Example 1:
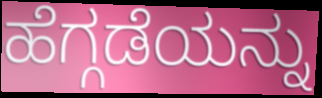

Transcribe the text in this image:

ಹೆಗ್ಗಡೆಯನ್ನು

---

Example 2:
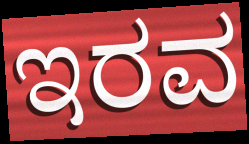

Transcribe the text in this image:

ಇರವ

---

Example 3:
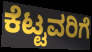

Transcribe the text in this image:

ಕೆಟ್ಟವರಿಗೆ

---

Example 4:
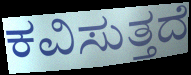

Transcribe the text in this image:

ಕವಿಸುತ್ತದೆ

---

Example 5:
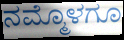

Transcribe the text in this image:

ನಮ್ಮೊಳಗೂ